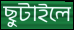
ছুটাইলে